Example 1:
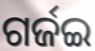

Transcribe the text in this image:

ଗର୍ଜଇ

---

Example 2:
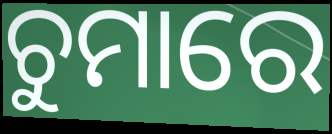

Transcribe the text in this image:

ଚୁମାରେ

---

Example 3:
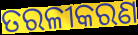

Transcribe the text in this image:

ତରଳୀକରଣ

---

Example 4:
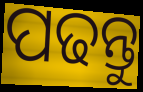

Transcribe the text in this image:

ପଢନ୍ତୁ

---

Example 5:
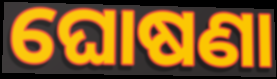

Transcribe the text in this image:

ଘୋଷଣା